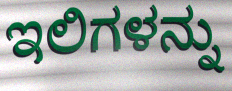
ಇಲಿಗಳನ್ನು